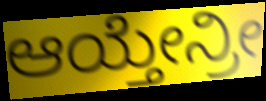
ಆಯ್ತೇನ್ರೀ